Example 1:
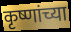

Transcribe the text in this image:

कृष्णांच्या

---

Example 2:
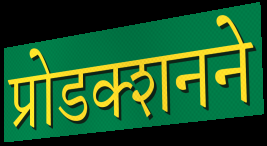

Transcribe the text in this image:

प्रोडक्शनने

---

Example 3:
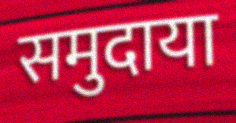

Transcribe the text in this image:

समुदाया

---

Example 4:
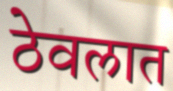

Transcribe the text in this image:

ठेवलात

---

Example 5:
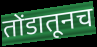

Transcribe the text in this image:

तोंडातूनच